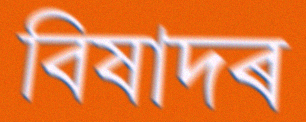
বিষাদৰ